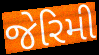
જેરિમી